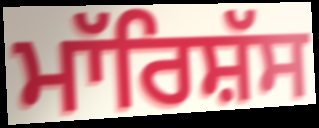
ਮਾੱਰਿਸ਼ੱਸ